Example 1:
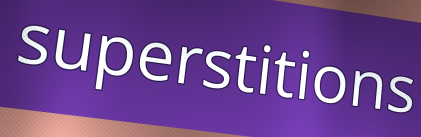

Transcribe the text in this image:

superstitions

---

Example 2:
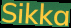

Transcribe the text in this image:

Sikka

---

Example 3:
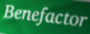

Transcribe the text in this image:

Benefactor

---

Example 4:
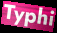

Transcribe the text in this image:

Typhi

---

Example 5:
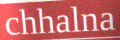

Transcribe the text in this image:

chhalna